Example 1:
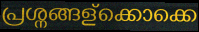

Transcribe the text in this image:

പ്രശ്നങ്ങള്ക്കൊക്കെ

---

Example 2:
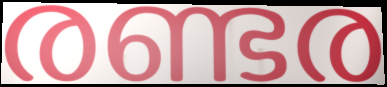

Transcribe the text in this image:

രണ്ടര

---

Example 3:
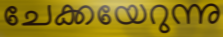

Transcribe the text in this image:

ചേക്കയേറുന്നു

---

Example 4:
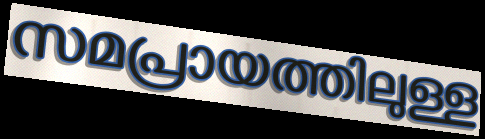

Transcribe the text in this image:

സമപ്രായത്തിലുള്ള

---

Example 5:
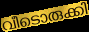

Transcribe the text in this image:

വീടൊരുക്കി